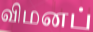
விமனப்